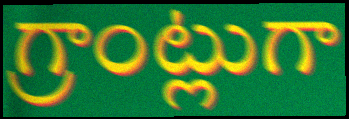
గ్రాంట్లుగా